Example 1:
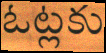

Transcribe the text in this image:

ఓట్లకు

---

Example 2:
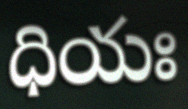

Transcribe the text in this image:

ధియః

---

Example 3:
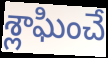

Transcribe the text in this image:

శ్లాఘించే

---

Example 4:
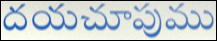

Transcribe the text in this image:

దయచూపుము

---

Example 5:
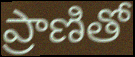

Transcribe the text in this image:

ప్రాణితో